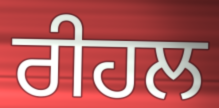
ਰੀਹਲ